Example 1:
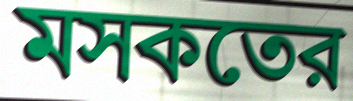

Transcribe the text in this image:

মসকতের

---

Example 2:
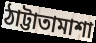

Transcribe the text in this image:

ঠাট্টাতামাশা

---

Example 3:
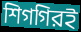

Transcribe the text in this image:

শিগগিরই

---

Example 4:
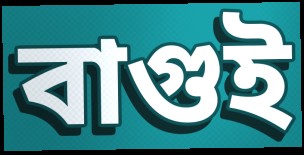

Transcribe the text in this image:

বাগুই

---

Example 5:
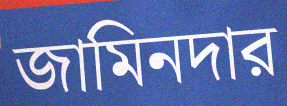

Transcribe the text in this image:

জামিনদার